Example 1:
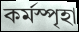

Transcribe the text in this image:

কর্মস্পৃহা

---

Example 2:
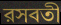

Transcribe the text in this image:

রসবতী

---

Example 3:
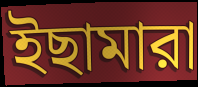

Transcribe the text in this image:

ইছামারা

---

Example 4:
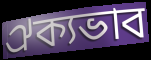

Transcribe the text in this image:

ঐক্যভাব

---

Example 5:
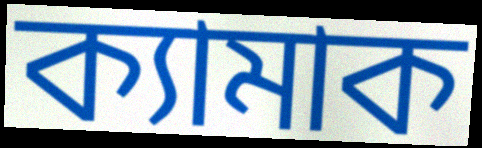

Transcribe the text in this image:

ক্যামাক